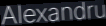
Alexandru